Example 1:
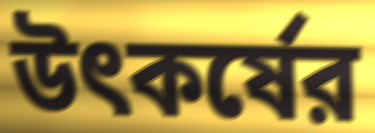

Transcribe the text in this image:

উৎকর্ষের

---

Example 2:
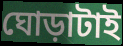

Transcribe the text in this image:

ঘোড়াটাই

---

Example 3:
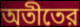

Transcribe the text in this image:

অতীতের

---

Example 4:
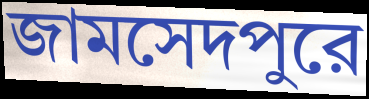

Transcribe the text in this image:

জামসেদপুরে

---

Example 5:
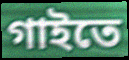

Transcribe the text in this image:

গাইতে